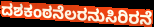
ದಶಕಂಠನೆಲರನುಸಿರಿರನೆ